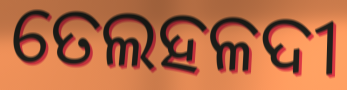
ତେଲହଳଦୀ